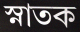
স্নাতক